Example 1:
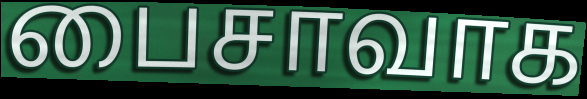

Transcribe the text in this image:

பைசாவாக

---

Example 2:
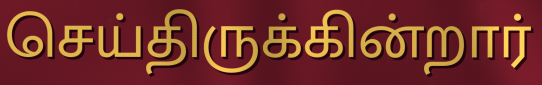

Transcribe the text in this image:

செய்திருக்கின்றார்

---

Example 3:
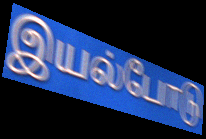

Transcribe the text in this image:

இயல்போடு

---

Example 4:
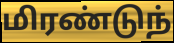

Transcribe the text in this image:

மிரண்டுந்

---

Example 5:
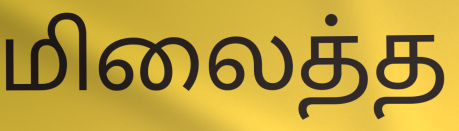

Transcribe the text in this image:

மிலைத்த